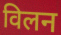
विलन